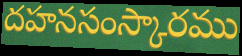
దహనసంస్కారము